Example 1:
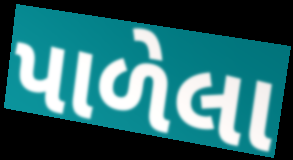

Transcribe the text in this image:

પાળેલા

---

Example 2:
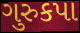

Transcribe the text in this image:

ગુરુકપા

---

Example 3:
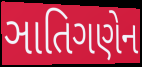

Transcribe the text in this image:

ઞાતિગણેન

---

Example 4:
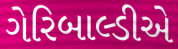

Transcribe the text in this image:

ગેરિબાલ્ડીએ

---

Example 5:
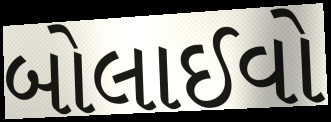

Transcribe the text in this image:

બોલાઈવો